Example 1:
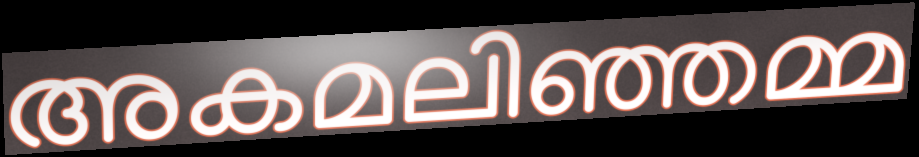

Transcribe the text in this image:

അകമലിഞ്ഞമ്മ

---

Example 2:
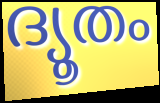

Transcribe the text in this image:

ദ്യൂതം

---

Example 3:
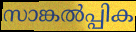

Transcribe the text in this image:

സാങ്കൽപ്പിക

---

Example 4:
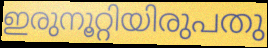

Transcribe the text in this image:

ഇരുനൂറ്റിയിരുപതു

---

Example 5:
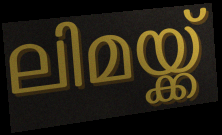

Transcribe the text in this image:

ലിമയ്ക്ക്